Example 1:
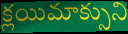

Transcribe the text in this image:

క్లయిమాక్సుని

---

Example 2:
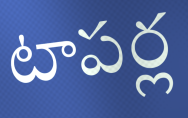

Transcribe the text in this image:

టాపర్ల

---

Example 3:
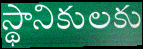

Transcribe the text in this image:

స్థానికులకు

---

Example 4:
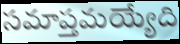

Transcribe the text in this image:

సమాప్తమయ్యేది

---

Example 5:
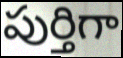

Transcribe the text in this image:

పుర్తిగా